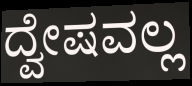
ದ್ವೇಷವಲ್ಲ